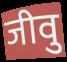
जीवु